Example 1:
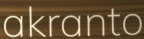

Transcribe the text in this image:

akranto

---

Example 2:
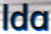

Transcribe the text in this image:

lda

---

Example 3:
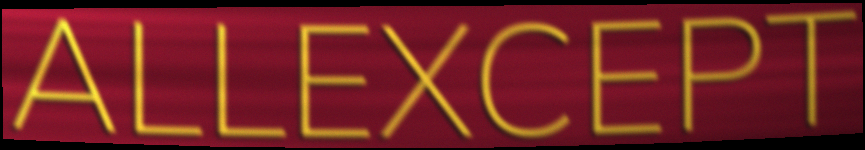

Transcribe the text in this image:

ALLEXCEPT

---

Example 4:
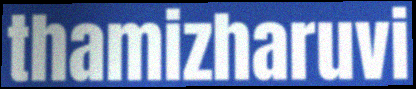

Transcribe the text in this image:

thamizharuvi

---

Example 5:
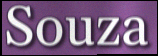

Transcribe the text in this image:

Souza